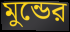
মুন্ডের